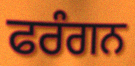
ਫਰੰਗਨ